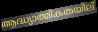
ആദ്ധ്യാത്മികതയില്